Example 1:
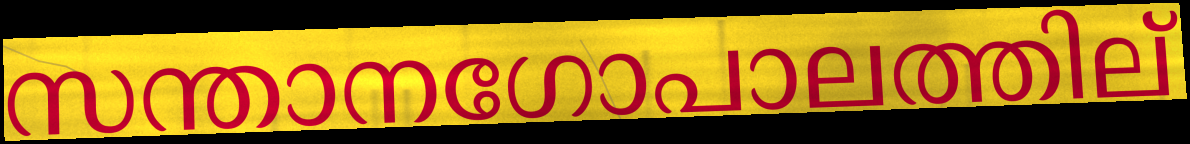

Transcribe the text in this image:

സന്താനഗോപാലത്തില്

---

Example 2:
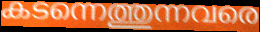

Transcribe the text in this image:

കടന്നെത്തുന്നവരെ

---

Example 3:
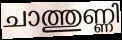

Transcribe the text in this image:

ചാത്തുണ്ണി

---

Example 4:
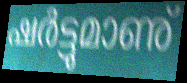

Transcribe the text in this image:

ഷർട്ടുമാണു്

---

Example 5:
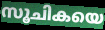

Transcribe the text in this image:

സൂചികയെ